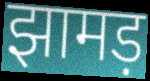
झामड़